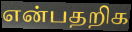
என்பதறிக